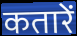
कतारें